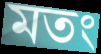
মতং